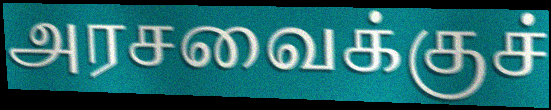
அரசவைக்குச்